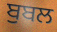
ਬੁਬਲ